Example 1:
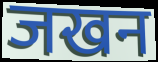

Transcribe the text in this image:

जखन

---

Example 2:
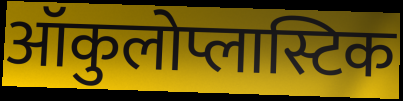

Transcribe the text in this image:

ऑकुलोप्लास्टिक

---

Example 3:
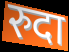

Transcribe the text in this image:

रुदा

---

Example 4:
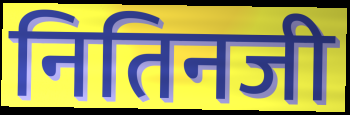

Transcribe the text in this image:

नितिनजी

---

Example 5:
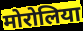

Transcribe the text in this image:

मोरोलिया